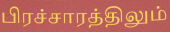
பிரச்சாரத்திலும்